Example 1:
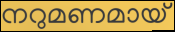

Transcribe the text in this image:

നറുമണമായ്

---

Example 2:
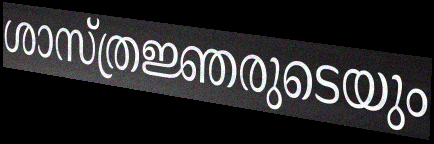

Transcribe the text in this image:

ശാസ്ത്രജ്ഞരുടെയും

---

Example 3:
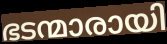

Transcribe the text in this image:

ഭടന്മാരായി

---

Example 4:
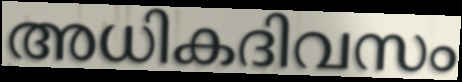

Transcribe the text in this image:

അധികദിവസം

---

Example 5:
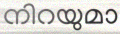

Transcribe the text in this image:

നിറയുമാ